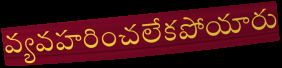
వ్యవహరించలేకపోయారు